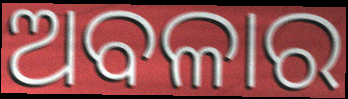
ଅବଳାର